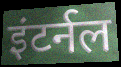
इंटर्नल